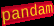
pandam